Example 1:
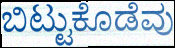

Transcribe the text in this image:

ಬಿಟ್ಟುಕೊಡೆವು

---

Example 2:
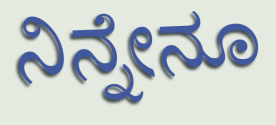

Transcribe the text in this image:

ನಿನ್ನೇನೂ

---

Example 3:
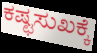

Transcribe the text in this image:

ಕಷ್ಟಸುಖಕ್ಕೆ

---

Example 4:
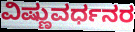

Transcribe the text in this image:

ವಿಷ್ಣುವರ್ಧನರ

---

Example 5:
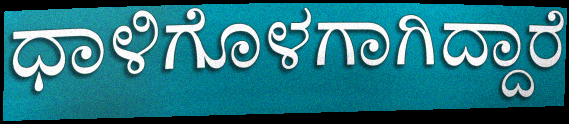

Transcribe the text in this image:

ಧಾಳಿಗೊಳಗಾಗಿದ್ದಾರೆ